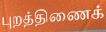
புறத்திணைக்